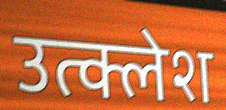
उत्क्लेश